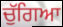
ਚੁੱਗਿਆ